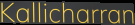
Kallicharran